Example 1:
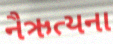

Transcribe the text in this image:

નૈઋત્યના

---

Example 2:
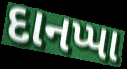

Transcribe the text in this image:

દાનપ્પા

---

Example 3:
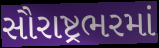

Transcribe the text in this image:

સૌરાષ્ટ્રભરમાં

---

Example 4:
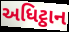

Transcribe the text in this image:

અધિટ્ઠાન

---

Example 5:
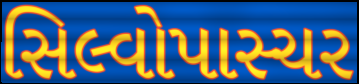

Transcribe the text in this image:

સિલ્વોપાસ્ચર